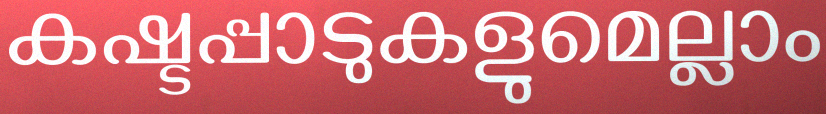
കഷ്ടപ്പാടുകളുമെല്ലാം